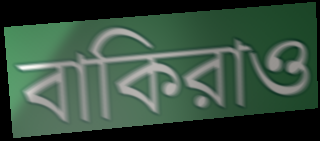
বাকিরাও